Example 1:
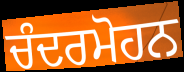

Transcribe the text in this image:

ਚੰਦਰਮੋਹਨ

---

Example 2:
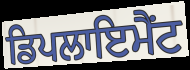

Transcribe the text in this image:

ਡਿਪਲਾਇਮੈਂਟ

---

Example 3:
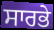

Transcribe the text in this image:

ਸਾਰਭੇ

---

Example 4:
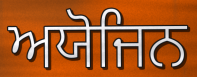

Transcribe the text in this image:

ਅਯੋਜਿਨ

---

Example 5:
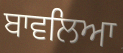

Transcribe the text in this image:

ਬਾਵਲਿਆ